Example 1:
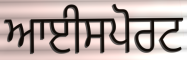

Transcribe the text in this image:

ਆਈਸਪੋਰਟ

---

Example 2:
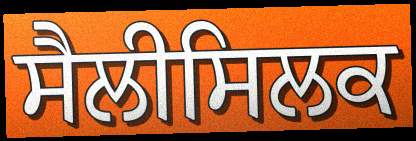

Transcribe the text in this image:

ਸੈਲੀਸਿਲਕ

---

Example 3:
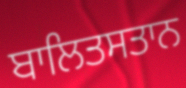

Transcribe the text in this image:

ਬਾਲਿਤਸਤਾਨ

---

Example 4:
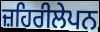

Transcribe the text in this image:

ਜ਼ਹਿਰੀਲੇਪਨ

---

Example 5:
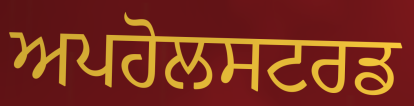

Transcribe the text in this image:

ਅਪਹੋਲਸਟਰਡ